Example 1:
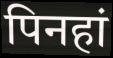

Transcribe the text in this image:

पिनहां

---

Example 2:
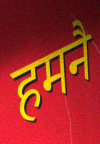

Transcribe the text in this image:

हमनै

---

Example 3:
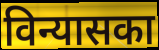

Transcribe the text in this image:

विन्यासका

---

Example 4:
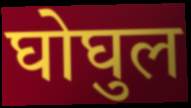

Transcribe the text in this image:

घोघुल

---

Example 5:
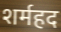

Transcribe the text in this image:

शर्महद